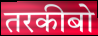
तरकीबो